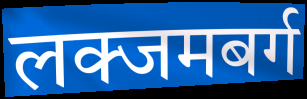
लक्जमबर्ग